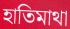
হাতিমাথা